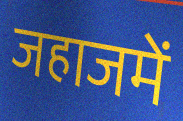
जहाजमें